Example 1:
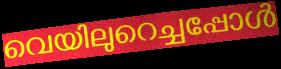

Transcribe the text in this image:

വെയിലുറെച്ചപ്പോൾ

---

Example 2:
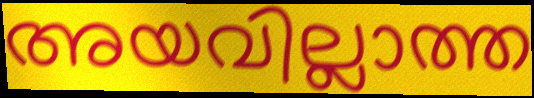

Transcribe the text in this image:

അയവില്ലാത്ത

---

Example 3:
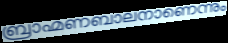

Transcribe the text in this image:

ബ്രാഹ്മണബാലനാണെന്നും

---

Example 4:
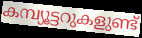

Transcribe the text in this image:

കമ്പ്യൂട്ടറുകളുണ്ട്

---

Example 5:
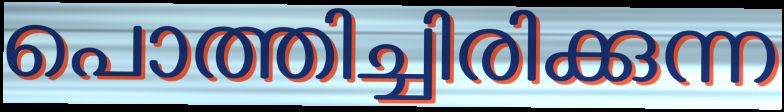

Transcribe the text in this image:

പൊത്തിച്ചിരിക്കുന്ന